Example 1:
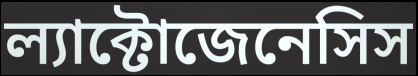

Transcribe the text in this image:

ল্যাক্টোজেনেসিস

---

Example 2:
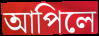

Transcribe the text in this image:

আপিলে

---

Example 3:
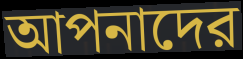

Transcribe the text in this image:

আপনাদের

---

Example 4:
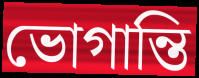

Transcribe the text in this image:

ভোগান্তি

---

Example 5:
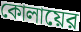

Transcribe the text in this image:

কোলায়ের